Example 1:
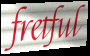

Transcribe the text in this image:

fretful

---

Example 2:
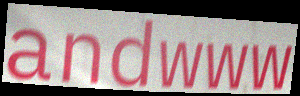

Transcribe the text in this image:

andwww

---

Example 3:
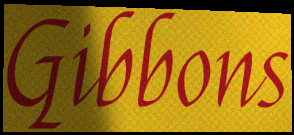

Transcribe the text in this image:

Gibbons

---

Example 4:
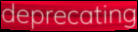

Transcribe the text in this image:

deprecating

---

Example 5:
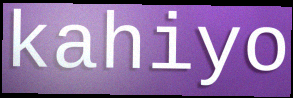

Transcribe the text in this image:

kahiyo